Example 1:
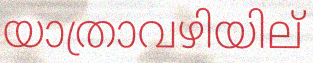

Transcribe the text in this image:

യാത്രാവഴിയില്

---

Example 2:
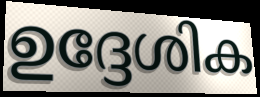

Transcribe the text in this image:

ഉദ്ദേശിക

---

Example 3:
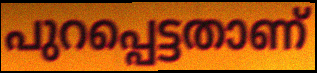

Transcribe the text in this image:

പുറപ്പെട്ടതാണ്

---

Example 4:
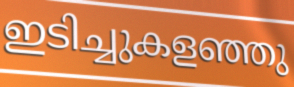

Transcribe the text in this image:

ഇടിച്ചുകളഞ്ഞു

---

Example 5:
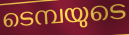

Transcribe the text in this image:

ടെമ്പയുടെ